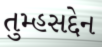
તુમ્હસદ્દેન